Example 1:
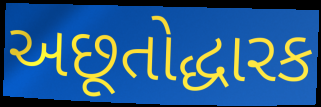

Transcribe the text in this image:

અછૂતોદ્ધારક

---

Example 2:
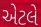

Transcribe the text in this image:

એેટલે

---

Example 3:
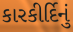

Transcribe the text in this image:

કારકીર્દિનું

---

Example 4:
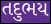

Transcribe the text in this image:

તદુભય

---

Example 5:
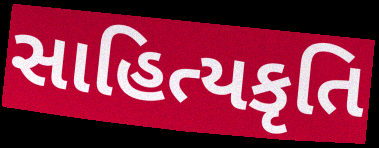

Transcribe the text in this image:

સાહિત્યકૃતિ